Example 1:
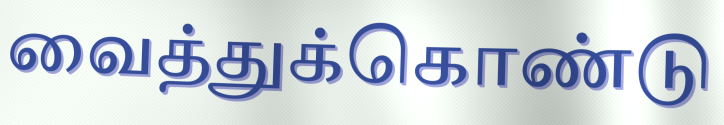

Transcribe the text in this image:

வைத்துக்கொண்டு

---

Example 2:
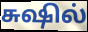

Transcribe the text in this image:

சுஷில்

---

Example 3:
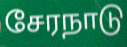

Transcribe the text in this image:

சேரநாடு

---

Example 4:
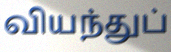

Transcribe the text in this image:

வியந்துப்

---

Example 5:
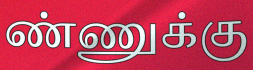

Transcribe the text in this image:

ண்ணுக்கு